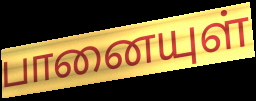
பானையுள்